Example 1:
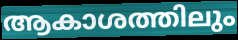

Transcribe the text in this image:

ആകാശത്തിലും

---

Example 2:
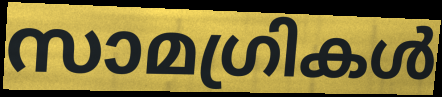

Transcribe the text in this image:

സാമഗ്രികൾ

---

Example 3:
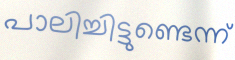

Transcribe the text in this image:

പാലിച്ചിട്ടുണ്ടെന്ന്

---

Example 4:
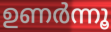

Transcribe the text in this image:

ഉണർന്നൂ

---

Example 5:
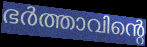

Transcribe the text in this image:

ഭർത്താവിന്റെ